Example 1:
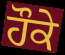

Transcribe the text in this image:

ਹੌਕੇ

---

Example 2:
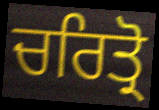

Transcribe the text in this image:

ਚਰਿਤ੍ਰੋ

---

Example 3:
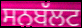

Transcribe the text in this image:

ਸਨਬੱਲਟ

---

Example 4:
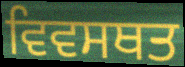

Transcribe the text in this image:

ਵਿਵਸਥਤ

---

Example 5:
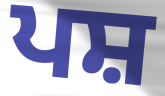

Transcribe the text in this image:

ਪਸ਼